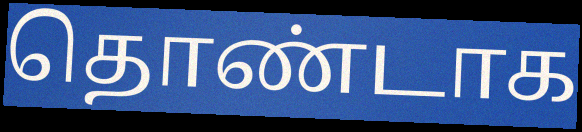
தொண்டாக